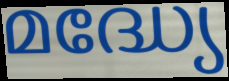
മദ്ധ്യേ